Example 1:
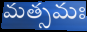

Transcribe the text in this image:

మత్సమః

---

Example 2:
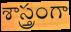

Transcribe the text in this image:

శాస్త్రంగా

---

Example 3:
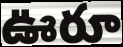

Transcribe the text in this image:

ఊరూ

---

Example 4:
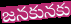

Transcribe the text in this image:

జనకునకు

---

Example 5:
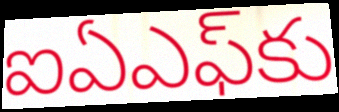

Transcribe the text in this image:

ఐఏఎఫ్‌కు